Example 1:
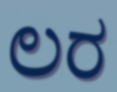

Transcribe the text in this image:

ಲರ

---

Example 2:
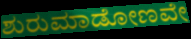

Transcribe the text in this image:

ಶುರುಮಾಡೋಣವೇ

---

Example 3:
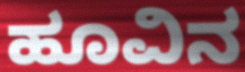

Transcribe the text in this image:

ಹೂವಿನ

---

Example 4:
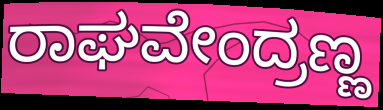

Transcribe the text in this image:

ರಾಘವೇಂದ್ರಣ್ಣ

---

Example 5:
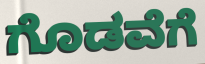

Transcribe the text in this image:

ಗೊಡವೆಗೆ